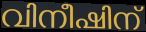
വിനീഷിന്